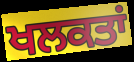
ਖਲਕਤਾਂ